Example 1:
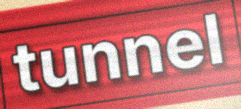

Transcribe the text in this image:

tunnel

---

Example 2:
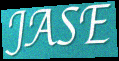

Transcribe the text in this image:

JASE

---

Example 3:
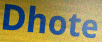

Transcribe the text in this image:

Dhote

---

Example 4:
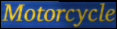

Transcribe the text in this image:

Motorcycle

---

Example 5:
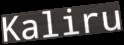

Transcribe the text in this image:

Kaliru